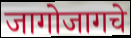
जागोजागचे